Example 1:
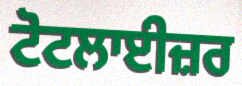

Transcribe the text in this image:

ਟੋਟਲਾਈਜ਼ਰ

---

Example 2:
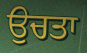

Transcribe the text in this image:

ਉਚਤਾ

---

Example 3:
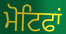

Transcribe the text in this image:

ਮੋਟਿਫਾਂ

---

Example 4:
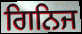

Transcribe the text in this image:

ਗਿਨਿਜ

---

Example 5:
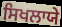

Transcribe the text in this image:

ਸਿਖਲਾਯੇ